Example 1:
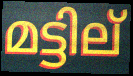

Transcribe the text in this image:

മട്ടില്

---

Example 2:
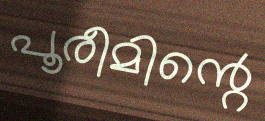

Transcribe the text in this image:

പൂരീമിന്റെ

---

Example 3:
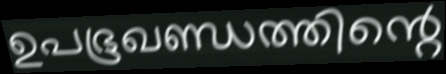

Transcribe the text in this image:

ഉപഭൂഖണ്ഡത്തിന്റെ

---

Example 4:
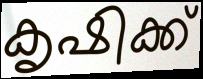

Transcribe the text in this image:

കൃഷിക്ക്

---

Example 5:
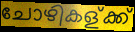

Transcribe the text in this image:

ചോഴികള്ക്ക്